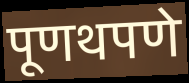
पूणथपणे